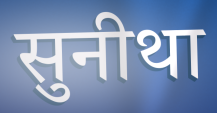
सुनीथा